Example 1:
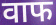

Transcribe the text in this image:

वाफ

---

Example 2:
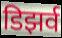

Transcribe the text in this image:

डिझर्व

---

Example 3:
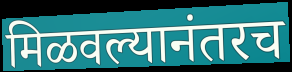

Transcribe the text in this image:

मिळवल्यानंतरच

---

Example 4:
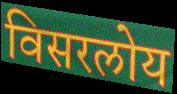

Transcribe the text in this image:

विसरलोय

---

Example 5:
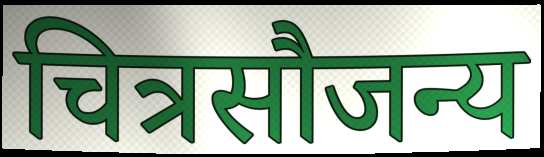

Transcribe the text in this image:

चित्रसौजन्य